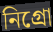
নিগ্ৰো